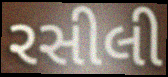
રસીલી